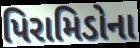
પિરામિડોના